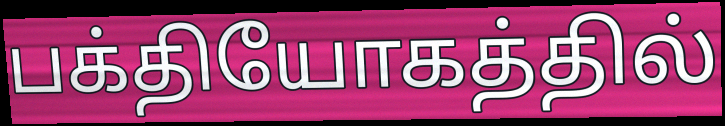
பக்தியோகத்தில்